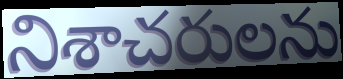
నిశాచరులను